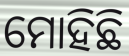
ମୋହିଛି